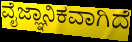
ವೈಜ್ಞಾನಿಕವಾಗಿದೆ